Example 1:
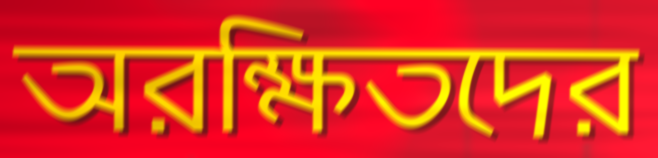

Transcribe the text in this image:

অরক্ষিতদের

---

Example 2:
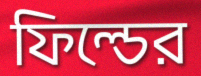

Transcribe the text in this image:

ফিল্ডের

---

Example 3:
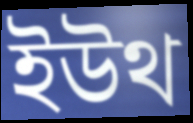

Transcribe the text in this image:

ইউথ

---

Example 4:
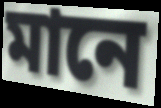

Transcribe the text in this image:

মানে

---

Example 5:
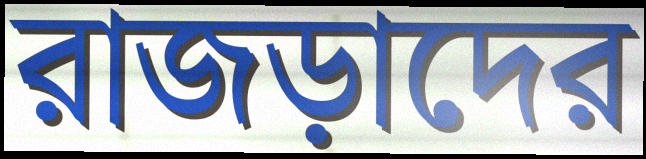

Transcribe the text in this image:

রাজড়াদের